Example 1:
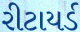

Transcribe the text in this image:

રીટાયર્ડ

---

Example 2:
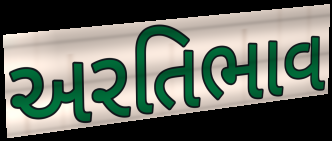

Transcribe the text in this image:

અરતિભાવ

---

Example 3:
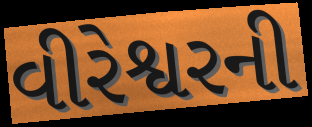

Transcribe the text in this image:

વીરેશ્વરની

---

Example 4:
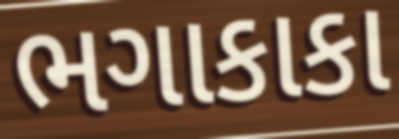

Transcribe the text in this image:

ભગાકાકા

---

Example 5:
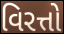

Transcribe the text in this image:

વિરત્તો